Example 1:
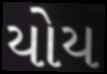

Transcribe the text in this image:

યોય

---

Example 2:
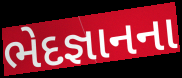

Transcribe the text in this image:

ભેદજ્ઞાનના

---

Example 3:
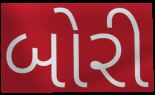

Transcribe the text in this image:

બોરી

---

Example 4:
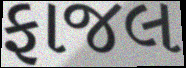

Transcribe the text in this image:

ફાજલ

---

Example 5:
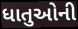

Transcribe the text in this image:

ધાતુઓની